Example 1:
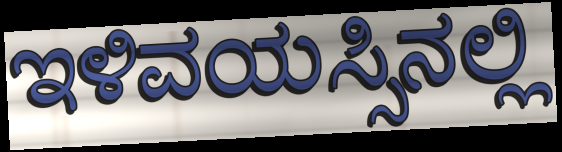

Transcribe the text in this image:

ಇಳಿವಯಸ್ಸಿನಲ್ಲಿ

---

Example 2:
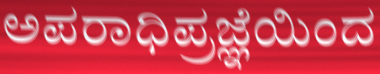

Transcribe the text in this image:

ಅಪರಾಧಿಪ್ರಜ್ಞೆಯಿಂದ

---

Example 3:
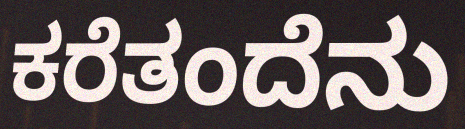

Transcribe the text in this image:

ಕರೆತಂದೆನು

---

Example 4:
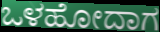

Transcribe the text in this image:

ಒಳಹೋದಾಗ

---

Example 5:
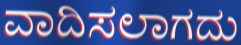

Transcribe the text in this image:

ವಾದಿಸಲಾಗದು